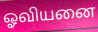
ஓவியனை